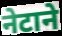
नेटाने